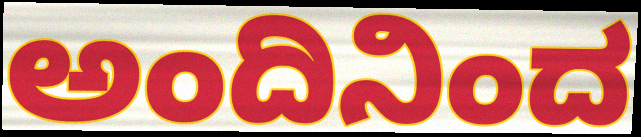
ಅಂದಿನಿಂದ